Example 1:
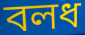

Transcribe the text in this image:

বলধ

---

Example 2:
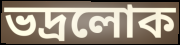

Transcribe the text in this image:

ভদ্ৰলোক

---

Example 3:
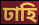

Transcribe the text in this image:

ঢাহি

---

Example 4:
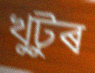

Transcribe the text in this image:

খুটুৰ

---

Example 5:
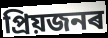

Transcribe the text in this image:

প্ৰিয়জনৰ